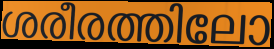
ശരീരത്തിലോ